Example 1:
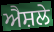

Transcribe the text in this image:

ਐਸ਼ਲੇ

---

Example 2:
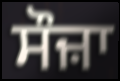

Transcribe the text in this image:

ਸੌਜ਼ਾ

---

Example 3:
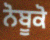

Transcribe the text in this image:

ਨੋਬੂਕੋ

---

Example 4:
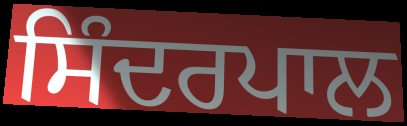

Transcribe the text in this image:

ਸਿੰਦਰਪਾਲ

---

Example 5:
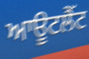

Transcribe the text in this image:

ਆਊਟਲੈੱਟ